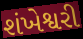
શંખેશ્વરી